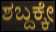
ಶಬ್ದಕ್ಕೇ